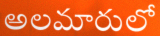
అలమారులో